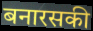
बनारसकी